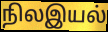
நிலஇயல்